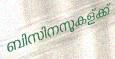
ബിസിനസുകള്ക്ക്